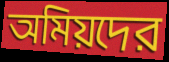
অমিয়দের